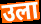
उला